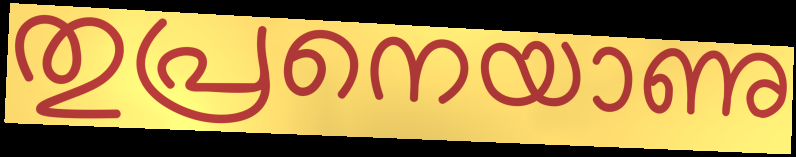
തുപ്രനെയാണു